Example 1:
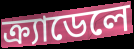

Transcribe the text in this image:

ক্র্যাডেলে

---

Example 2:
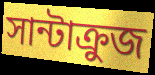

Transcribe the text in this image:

সান্টাক্রুজ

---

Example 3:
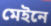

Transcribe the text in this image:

মেইনে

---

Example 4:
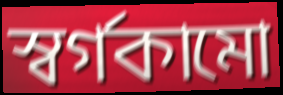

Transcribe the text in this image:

স্বর্গকামো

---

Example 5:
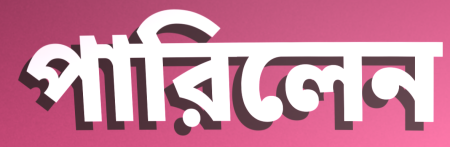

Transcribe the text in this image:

পারিলেন